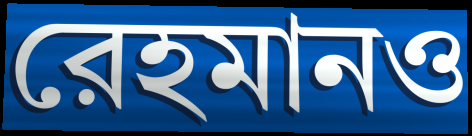
রেহমানও